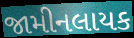
જામીનલાયક